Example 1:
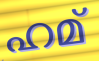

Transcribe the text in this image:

ഹമ്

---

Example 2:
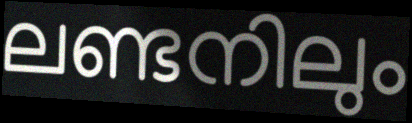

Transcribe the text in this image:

ലണ്ടനിലും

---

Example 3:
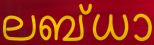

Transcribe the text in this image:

ലബ്ധാ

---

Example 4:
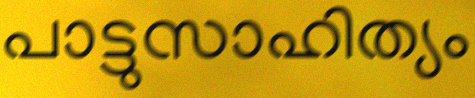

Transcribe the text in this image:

പാട്ടുസാഹിത്യം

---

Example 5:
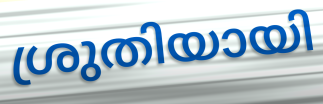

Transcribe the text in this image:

ശ്രുതിയായി